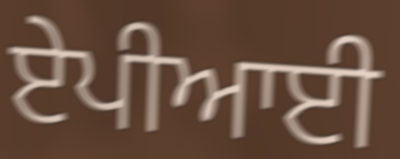
ਏਪੀਆਈ